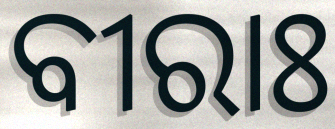
ବୀରାଃ